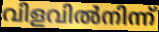
വിളവിൽനിന്ന്